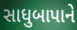
સાધુબાપાને